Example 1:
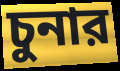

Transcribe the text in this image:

চুনার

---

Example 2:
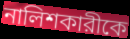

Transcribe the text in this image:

নালিশকারীকে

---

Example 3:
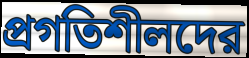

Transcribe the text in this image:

প্রগতিশীলদের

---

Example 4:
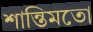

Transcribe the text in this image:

শান্তিমতো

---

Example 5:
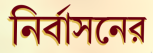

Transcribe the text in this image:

নির্বাসনের